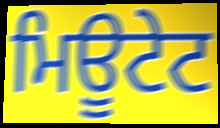
ਮਿਊਟੇਟ